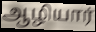
ஆழியார்